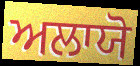
ਅਲਾਯੋ